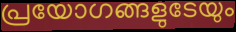
പ്രയോഗങ്ങളുടേയും